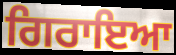
ਗਿਰਾਇਆ